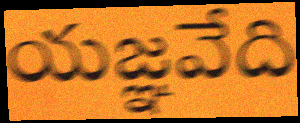
యజ్ఞవేది